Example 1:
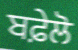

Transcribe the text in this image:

ਬਫ਼ੇਲੋ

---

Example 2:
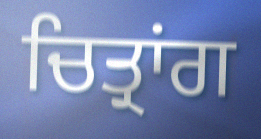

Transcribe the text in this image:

ਚਿਤ੍ਰਾਂਗ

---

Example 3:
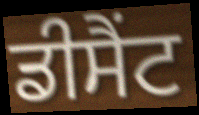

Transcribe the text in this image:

ਡੀਸੈਂਟ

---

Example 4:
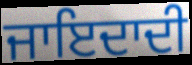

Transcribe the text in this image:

ਜਾਇਦਾਦੀ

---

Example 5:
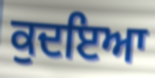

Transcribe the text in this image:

ਕੁਦਇਆ